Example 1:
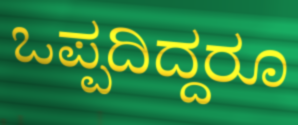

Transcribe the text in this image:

ಒಪ್ಪದಿದ್ದರೂ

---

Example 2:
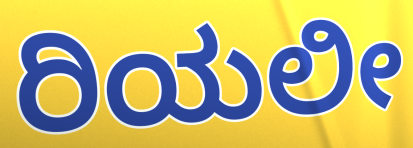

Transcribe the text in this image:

ರಿಯಲೀ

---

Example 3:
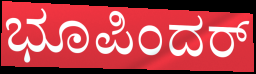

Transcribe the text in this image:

ಭೂಪಿಂದರ್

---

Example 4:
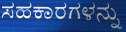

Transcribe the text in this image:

ಸಹಕಾರಗಳನ್ನು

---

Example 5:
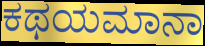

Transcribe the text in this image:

ಕಥಯಮಾನಾ